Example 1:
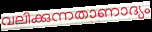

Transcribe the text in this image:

വലിക്കുന്നതാണാദ്യം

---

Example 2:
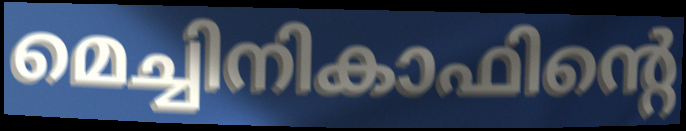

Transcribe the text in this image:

മെച്ചിനികാഫിന്റെ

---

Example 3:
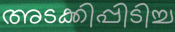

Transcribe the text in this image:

അടക്കിപ്പിടിച്ച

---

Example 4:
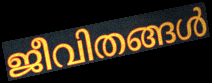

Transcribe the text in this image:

ജീവിതങ്ങൾ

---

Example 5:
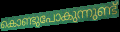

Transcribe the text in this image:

കൊണ്ടുപോകുന്നുണ്ട്